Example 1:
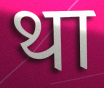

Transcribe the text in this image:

था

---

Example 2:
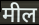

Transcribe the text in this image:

मील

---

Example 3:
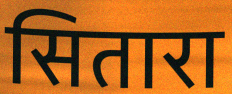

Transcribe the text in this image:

सितारा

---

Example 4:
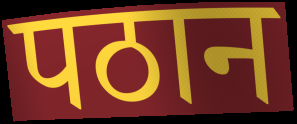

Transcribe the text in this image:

पठान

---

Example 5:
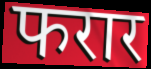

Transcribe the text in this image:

फरार